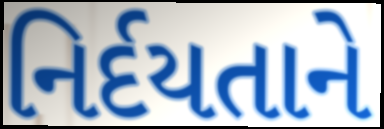
નિર્દયતાને